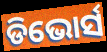
ଡିଭୋର୍ସ